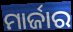
ମାର୍ଜାର